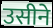
उसीने